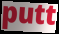
putt